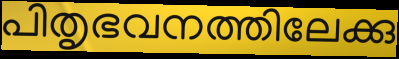
പിതൃഭവനത്തിലേക്കു